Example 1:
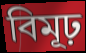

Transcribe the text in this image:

বিমূঢ়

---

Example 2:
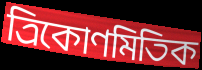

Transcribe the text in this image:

ত্ৰিকোণমিতিক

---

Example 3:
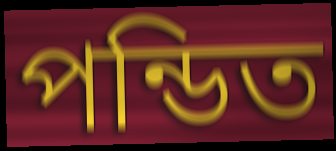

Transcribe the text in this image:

পন্ডিত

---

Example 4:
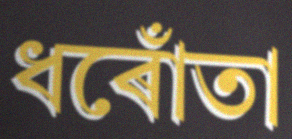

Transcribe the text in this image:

ধৰোঁতা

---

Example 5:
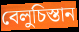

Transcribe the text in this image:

বেলুচিস্তান